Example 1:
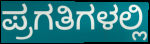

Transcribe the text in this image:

ಪ್ರಗತಿಗಳಲ್ಲಿ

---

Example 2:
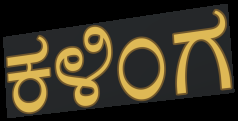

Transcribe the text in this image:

ಕಳಿಂಗ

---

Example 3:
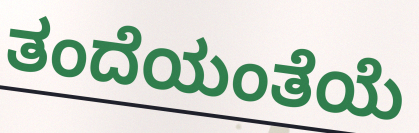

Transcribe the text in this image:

ತಂದೆಯಂತೆಯೆ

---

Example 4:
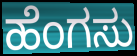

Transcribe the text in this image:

ಹೆಂಗಸು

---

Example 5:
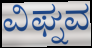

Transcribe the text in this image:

ವಿಘ್ನವ